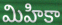
మిహికా